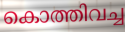
കൊത്തിവച്ച